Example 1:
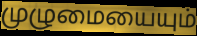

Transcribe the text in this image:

முழுமையையும்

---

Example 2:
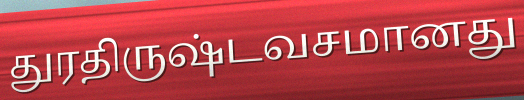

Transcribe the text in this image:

துரதிருஷ்டவசமானது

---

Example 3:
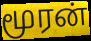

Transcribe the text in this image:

மூரன்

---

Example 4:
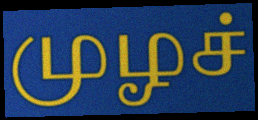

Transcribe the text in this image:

முழச்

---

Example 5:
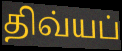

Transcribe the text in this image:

திவ்யப்